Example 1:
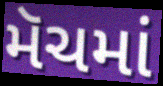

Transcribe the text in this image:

મૅચમાં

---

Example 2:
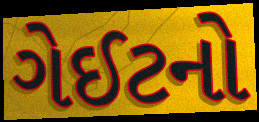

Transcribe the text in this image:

ગેઈટનો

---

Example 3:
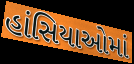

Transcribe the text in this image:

હાંસિયાઓમાં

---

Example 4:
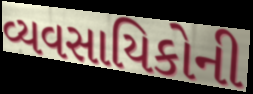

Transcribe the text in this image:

વ્યવસાયિકોની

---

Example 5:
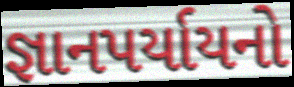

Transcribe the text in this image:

જ્ઞાનપર્યાયનો